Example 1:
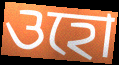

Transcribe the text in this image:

ওহো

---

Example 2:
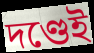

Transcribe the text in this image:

দণ্ডেই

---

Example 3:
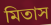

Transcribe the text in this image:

মিতাস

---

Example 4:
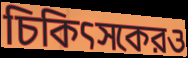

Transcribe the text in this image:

চিকিৎসকেরও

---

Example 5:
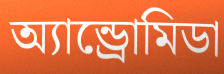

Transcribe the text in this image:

অ্যান্ড্রোমিডা